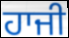
ਹਾਜੀ